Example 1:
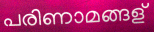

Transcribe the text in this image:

പരിണാമങ്ങള്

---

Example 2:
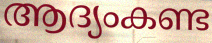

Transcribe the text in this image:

ആദ്യംകണ്ട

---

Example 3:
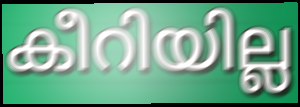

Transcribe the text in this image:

കീറിയില്ല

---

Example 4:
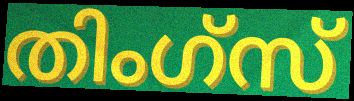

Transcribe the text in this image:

തിംഗ്സ്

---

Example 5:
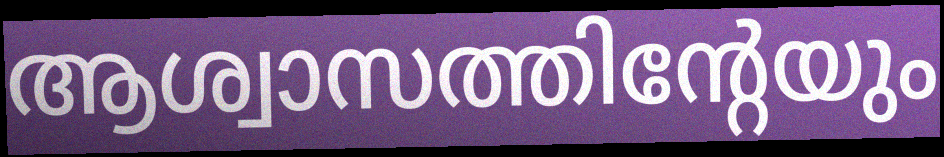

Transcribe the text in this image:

ആശ്വാസത്തിന്റേയും